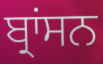
ਬ੍ਰਾਂਸਨ